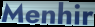
Menhir